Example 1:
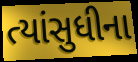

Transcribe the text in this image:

ત્યાંસુધીના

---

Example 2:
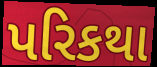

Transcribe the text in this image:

પરિકથા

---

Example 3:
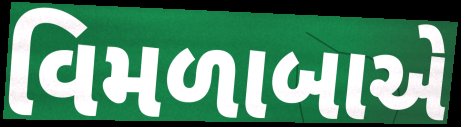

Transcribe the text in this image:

વિમળાબાએ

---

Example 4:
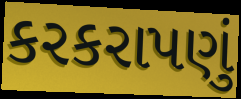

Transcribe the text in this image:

કરકરાપણું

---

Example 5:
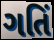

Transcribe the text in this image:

ગતિં